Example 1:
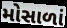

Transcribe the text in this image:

મોસાળાં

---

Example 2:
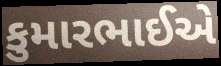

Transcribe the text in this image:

કુમારભાઈએ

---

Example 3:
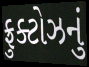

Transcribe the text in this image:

ફ્રુક્ટોઝનું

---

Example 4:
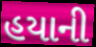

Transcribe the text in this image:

હયાની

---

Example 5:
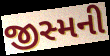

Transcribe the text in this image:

જીસ્મની